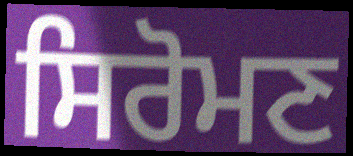
ਸਿਰੋਮਣ